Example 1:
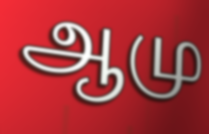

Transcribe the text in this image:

ஆமு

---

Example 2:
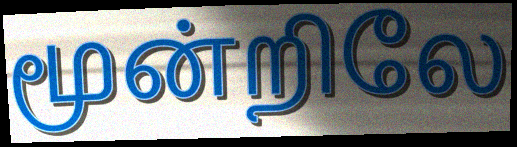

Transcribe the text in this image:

மூன்றிலே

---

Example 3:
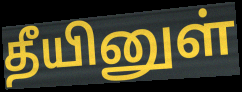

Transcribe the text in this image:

தீயினுள்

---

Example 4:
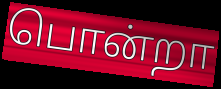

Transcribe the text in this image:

பொன்றா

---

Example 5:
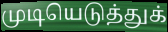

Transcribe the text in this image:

முடியெடுத்துக்